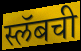
स्लॅबची